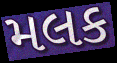
મલક